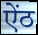
ऐंठ